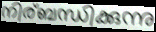
നിര്ബന്ധിക്കുന്നു